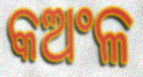
କଅଂଳ